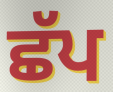
ਛੱਪ